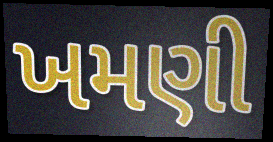
ખમણી